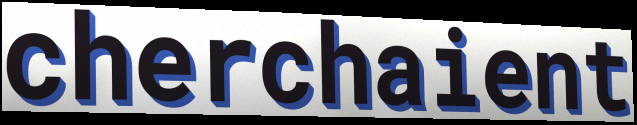
cherchaient